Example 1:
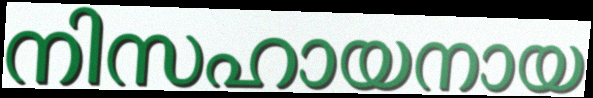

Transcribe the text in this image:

നിസഹായനായ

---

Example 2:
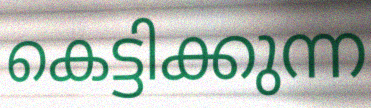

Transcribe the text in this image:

കെട്ടിക്കുന്ന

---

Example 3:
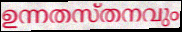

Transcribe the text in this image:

ഉന്നതസ്തനവും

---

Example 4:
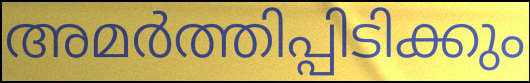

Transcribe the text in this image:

അമർത്തിപ്പിടിക്കും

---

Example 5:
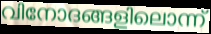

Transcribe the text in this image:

വിനോദങ്ങളിലൊന്ന്